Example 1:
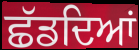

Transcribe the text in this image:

ਛੱਡਦਿਆਂ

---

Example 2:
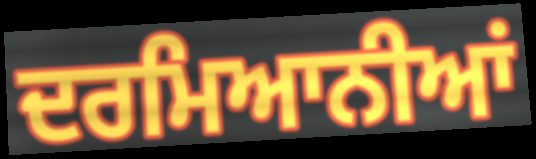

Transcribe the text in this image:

ਦਰਮਿਆਨੀਆਂ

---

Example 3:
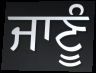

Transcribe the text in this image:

ਜਾਣੂੰ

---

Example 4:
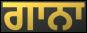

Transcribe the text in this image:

ਗਾਨਾ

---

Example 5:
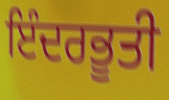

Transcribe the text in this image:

ਇੰਦਰਭੂਤੀ